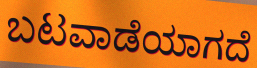
ಬಟವಾಡೆಯಾಗದೆ